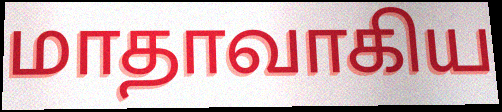
மாதாவாகிய